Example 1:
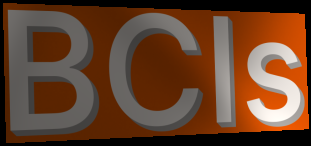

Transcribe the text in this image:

BCIs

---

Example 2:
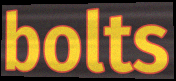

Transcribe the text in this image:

bolts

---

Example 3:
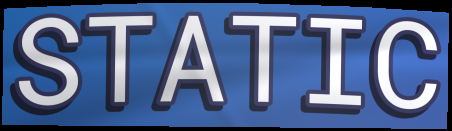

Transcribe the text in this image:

STATIC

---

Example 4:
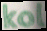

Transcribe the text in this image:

kol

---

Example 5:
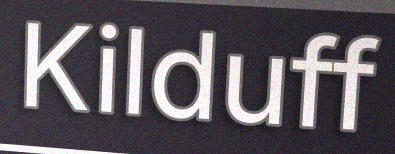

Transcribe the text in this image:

Kilduff